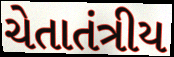
ચેતાતંત્રીય